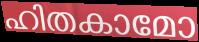
ഹിതകാമോ